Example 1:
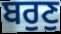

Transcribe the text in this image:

ਬਰੁਣੁ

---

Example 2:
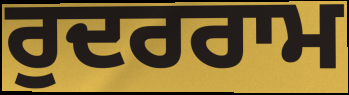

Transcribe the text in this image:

ਰੁਦਰਰਾਮ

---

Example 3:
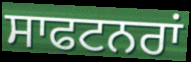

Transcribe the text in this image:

ਸਾਫਟਨਰਾਂ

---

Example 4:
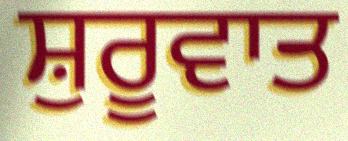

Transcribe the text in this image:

ਸ਼ੁਰੂਵਾਤ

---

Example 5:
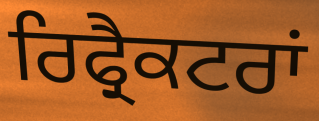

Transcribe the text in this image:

ਰਿਫ੍ਰੈਕਟਰਾਂ